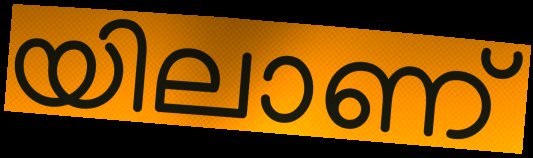
യിലാണ്